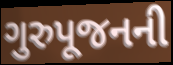
ગુરુપૂજનની